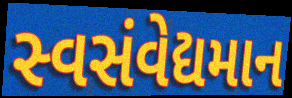
સ્વસંવેદ્યમાન